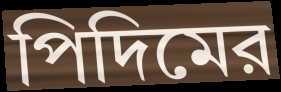
পিদিমের